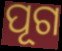
ପୂଗ